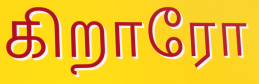
கிறாரோ